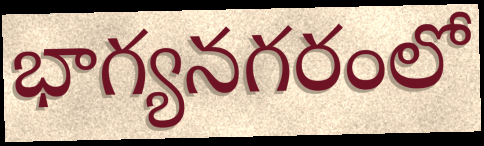
భాగ్యనగరంలో